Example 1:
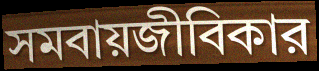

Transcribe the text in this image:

সমবায়জীবিকার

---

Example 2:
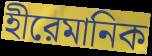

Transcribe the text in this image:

হীরেমানিক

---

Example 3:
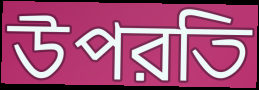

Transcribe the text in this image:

উপরতি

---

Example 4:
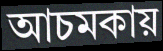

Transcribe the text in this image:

আচমকায়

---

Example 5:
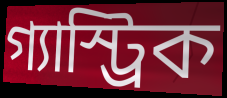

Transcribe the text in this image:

গ্যাস্ট্রিক